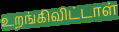
உறங்கிவிட்டாள்